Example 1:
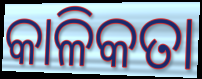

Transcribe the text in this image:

କାଳିକତା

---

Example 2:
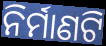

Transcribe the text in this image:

ନିର୍ମାଣଟି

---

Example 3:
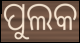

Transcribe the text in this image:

ପୁଲକ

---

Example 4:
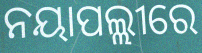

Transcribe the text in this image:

ନୟାପଲ୍ଲୀରେ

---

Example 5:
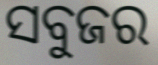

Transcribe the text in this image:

ସବୁଜର